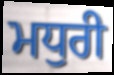
ਮਧੁਰੀ